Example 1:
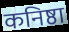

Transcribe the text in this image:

कनिष्ठा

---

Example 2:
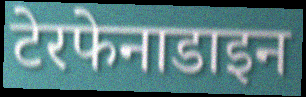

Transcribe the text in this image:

टेरफेनाडाइन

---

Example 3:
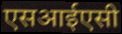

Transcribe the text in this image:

एसआईएसी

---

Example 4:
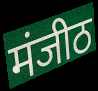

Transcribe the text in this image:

मंजीठ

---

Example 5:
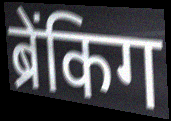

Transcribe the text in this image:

ब्रेंकिग